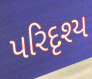
પરિદૃશ્ય